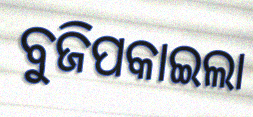
ବୁଜିପକାଇଲା